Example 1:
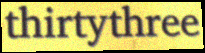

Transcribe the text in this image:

thirtythree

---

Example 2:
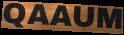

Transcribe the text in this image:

QAAUM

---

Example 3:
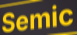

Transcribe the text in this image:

Semic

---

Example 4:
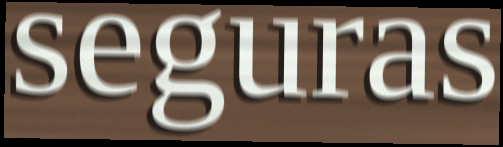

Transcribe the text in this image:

seguras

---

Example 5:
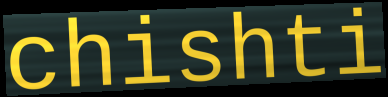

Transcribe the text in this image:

chishti